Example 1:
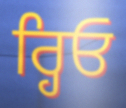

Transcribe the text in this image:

ਰ੍ਹਿਓ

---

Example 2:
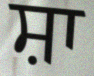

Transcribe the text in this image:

ਸ਼ਾ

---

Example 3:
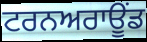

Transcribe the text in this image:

ਟਰਨਅਰਾਊਂਡ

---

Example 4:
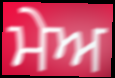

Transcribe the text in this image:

ਮੇਅ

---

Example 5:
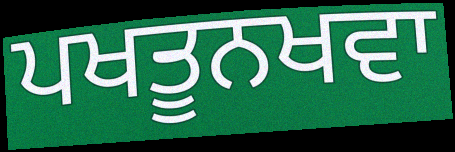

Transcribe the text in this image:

ਪਖਤੂਨਖਵਾ